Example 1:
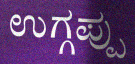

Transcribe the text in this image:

ಉಗ್ಗಪ್ಪು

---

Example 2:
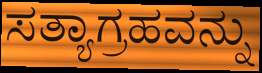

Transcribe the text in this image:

ಸತ್ಯಾಗ್ರಹವನ್ನು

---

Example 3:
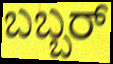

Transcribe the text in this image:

ಬಬ್ಬರ್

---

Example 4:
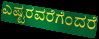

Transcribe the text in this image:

ಎಷ್ಟರವರೆಗೆಂದರೆ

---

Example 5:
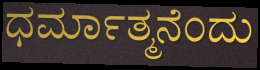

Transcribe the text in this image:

ಧರ್ಮಾತ್ಮನೆಂದು